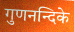
गुणनन्दिके